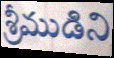
శ్రీముడిని